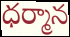
ధర్మాన